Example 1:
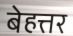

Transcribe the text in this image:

बेहत्तर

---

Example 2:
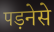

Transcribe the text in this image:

पड़नेसे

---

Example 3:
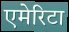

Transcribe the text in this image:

एमेरिटा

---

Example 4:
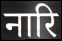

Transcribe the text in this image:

नारि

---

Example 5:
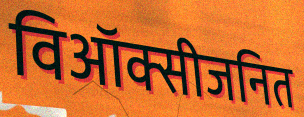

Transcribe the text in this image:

विऑक्सीजनित